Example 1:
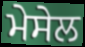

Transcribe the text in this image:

ਮੇਸੇਲ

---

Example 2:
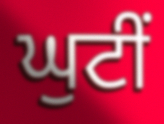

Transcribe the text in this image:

ਘੁਟੀਂ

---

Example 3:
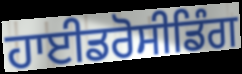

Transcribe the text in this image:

ਹਾਈਡਰੋਸੀਡਿੰਗ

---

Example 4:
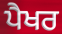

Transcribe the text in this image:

ਪੈਖਰ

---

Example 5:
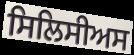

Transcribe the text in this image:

ਸਿਲਿਸੀਅਸ